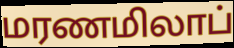
மரணமிலாப்